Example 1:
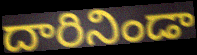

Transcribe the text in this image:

దారినిండా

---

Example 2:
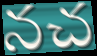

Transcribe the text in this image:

నచ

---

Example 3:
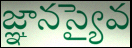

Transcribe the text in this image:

జ్ఞానస్యైవ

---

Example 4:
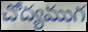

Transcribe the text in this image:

చోద్యముగ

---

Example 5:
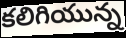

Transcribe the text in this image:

కలిగియున్న